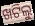
ଖଟିଲୁ